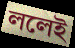
ললেই